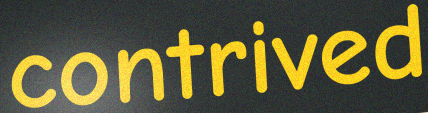
contrived